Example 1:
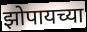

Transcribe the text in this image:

झोपायच्या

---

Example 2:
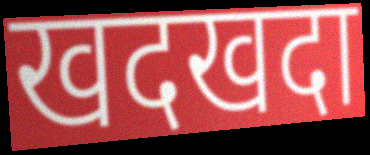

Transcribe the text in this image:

खदखदा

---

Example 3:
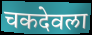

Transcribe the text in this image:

चकदेवला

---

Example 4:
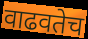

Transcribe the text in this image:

वाढवतेच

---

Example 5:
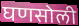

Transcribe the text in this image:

घणसोली